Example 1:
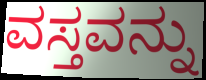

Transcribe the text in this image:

ವಸ್ತವನ್ನು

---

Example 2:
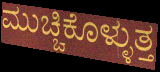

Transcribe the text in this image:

ಮುಚ್ಚಿಕೊಳ್ಳುತ್ತ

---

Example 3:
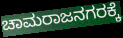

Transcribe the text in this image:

ಚಾಮರಾಜನಗರಕ್ಕೆ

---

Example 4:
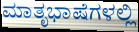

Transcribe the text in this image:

ಮಾತೃಭಾಷೆಗಳಲ್ಲಿ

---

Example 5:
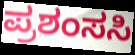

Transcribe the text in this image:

ಪ್ರಶಂಸಸಿ